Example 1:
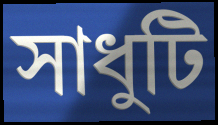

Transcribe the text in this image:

সাধুটি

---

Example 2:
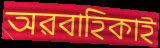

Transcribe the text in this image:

অৱবাহিকাই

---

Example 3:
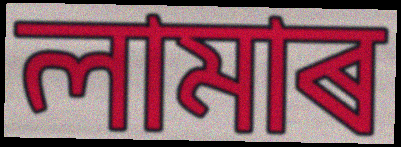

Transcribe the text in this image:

লামাৰ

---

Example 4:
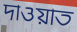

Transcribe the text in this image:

দাওয়াত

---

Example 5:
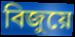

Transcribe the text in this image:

বিজুয়ে